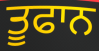
ਤੂਫਾਨ